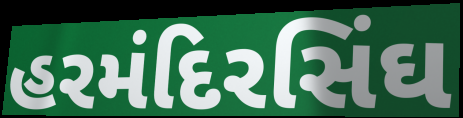
હરમંદિરસિંઘ